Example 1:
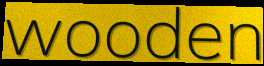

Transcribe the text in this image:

wooden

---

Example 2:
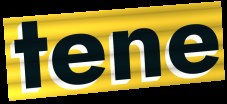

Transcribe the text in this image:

tene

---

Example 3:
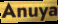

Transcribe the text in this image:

Anuya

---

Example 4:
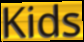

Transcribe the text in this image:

Kids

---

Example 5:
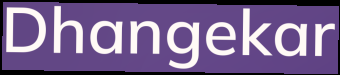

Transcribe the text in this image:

Dhangekar